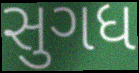
સુગધ